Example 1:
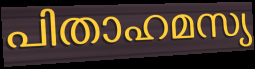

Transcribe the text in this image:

പിതാഹമസ്യ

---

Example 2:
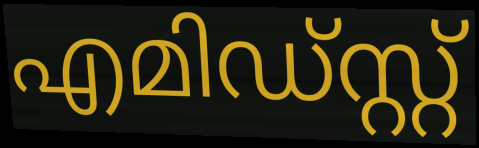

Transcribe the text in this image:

എമിഡ്സ്റ്റ്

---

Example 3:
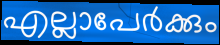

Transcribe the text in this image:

എല്ലാപേർക്കും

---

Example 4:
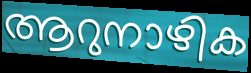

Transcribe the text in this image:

ആറുനാഴിക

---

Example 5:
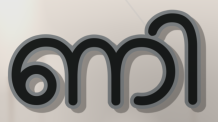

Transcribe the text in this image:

ണി